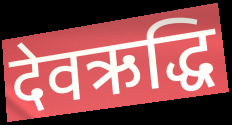
देवऋद्धि